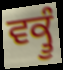
ਵਕ੍ਤੁੰ